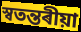
স্বতন্তৰীয়া